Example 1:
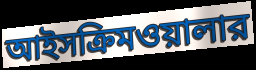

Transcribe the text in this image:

আইসক্রিমওয়ালার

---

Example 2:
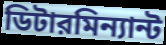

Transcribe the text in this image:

ডিটারমিন্যান্ট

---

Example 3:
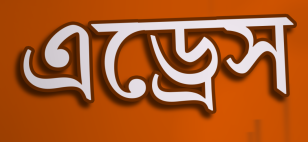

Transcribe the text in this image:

এড্রেস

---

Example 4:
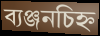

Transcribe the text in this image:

ব্যঞ্জনচিহ্ন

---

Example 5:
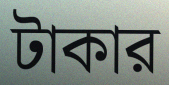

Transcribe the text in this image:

টাকার